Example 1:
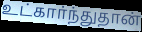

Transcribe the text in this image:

உட்கார்ந்துதான்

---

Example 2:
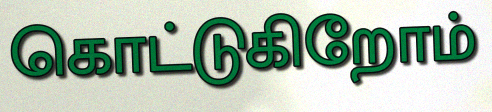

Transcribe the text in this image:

கொட்டுகிறோம்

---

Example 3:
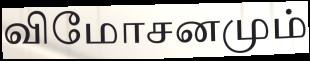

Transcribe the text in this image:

விமோசனமும்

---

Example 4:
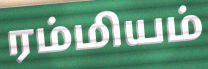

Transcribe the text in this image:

ரம்மியம்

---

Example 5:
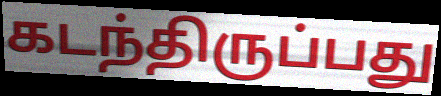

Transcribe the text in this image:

கடந்திருப்பது